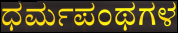
ಧರ್ಮಪಂಥಗಳ